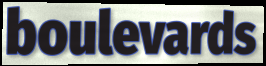
boulevards